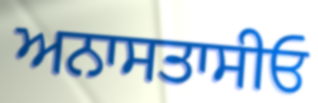
ਅਨਾਸਤਾਸੀਓ